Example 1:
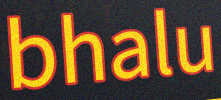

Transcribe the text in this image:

bhalu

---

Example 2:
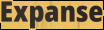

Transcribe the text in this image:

Expanse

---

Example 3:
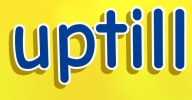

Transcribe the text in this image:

uptill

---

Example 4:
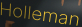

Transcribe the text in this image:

Holleman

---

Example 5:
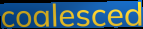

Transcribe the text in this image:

coalesced